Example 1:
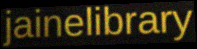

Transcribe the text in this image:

jainelibrary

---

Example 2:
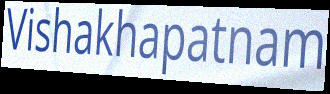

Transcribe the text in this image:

Vishakhapatnam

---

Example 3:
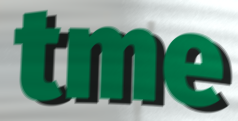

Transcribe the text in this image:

tme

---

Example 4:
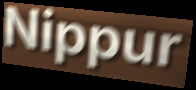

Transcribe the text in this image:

Nippur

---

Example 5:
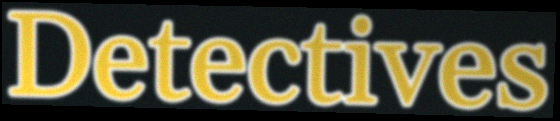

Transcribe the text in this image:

Detectives